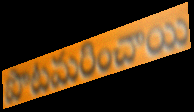
పొటమరించాయి